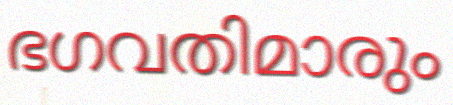
ഭഗവതിമാരും